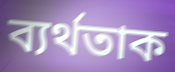
ব্যৰ্থতাক